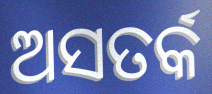
ଅସତର୍କ